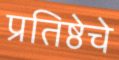
प्रतिष्ठेचे